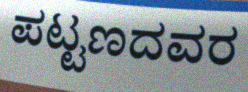
ಪಟ್ಟಣದವರ